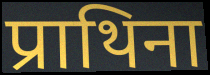
प्राथिना